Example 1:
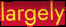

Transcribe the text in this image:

largely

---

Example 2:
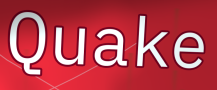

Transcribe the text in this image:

Quake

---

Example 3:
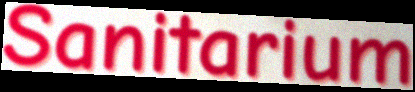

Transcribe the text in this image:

Sanitarium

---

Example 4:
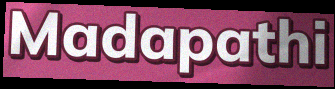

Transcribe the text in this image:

Madapathi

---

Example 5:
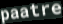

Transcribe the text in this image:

paatre